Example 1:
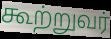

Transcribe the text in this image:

கூற்றுவர்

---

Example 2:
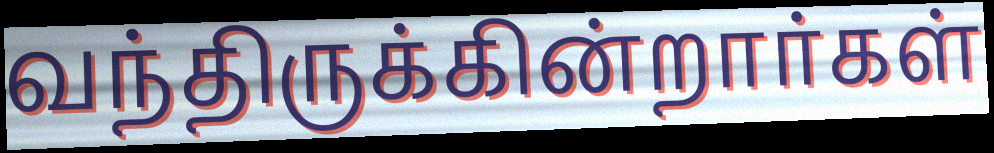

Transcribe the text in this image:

வந்திருக்கின்றார்கள்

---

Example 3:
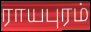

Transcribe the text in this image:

ராயபுரம்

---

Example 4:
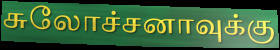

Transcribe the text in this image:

சுலோச்சனாவுக்கு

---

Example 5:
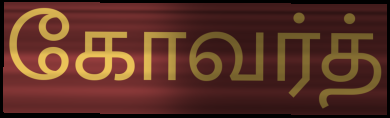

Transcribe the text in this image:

கோவர்த்